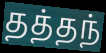
தத்தந்